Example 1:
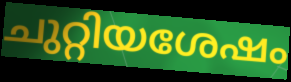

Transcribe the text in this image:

ചുറ്റിയശേഷം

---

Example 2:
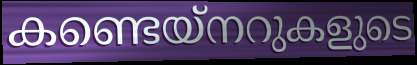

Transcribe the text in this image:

കണ്ടെയ്നറുകളുടെ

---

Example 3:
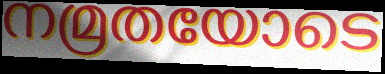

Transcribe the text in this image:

നമ്രതയോടെ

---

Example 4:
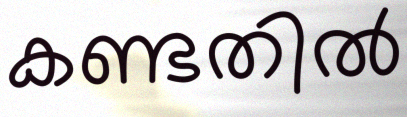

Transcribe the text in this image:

കണ്ടതിൽ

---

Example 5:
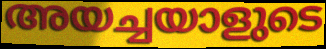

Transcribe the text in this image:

അയച്ചയാളുടെ